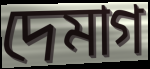
দেমাগ